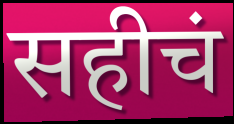
सहीचं